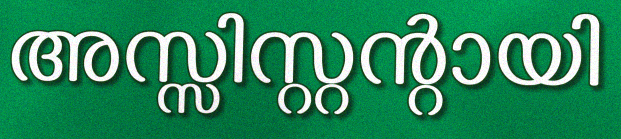
അസ്സിസ്റ്റന്റായി